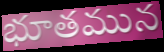
భూతమున